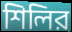
শিলির